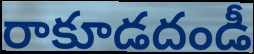
రాకూడదండీ